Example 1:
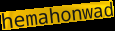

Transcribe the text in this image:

hemahonwad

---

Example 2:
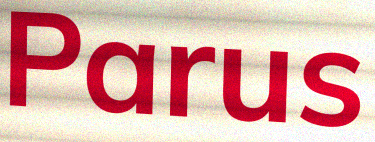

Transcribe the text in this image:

Parus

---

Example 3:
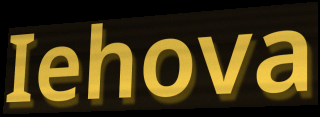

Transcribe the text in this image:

Iehova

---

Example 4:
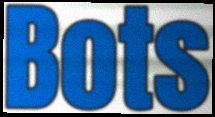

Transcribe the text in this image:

Bots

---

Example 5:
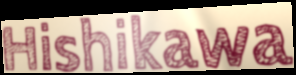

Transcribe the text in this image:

Hishikawa